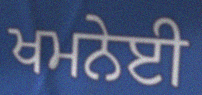
ਖਮਨੇਈ